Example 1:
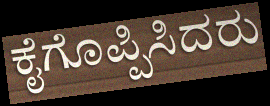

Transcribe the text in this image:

ಕೈಗೊಪ್ಪಿಸಿದರು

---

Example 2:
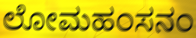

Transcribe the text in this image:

ಲೋಮಹಂಸನಂ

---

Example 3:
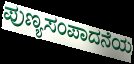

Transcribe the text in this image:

ಪುಣ್ಯಸಂಪಾದನೆಯ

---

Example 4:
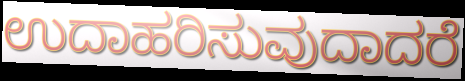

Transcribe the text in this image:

ಉದಾಹರಿಸುವುದಾದರೆ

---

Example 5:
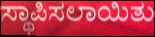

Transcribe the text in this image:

ಸ್ಥಾಪಿಸಲಾಯಿತು